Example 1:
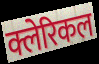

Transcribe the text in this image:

क्लेरिकल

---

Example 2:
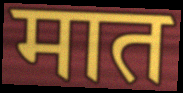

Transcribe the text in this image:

मात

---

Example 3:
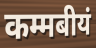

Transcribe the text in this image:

कम्मबीयं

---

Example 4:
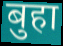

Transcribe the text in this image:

बुहा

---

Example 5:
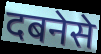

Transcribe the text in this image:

दबनेसे